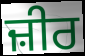
ਜ਼ੀਰ